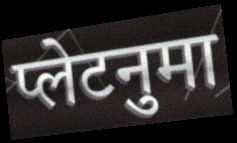
प्लेटनुमा